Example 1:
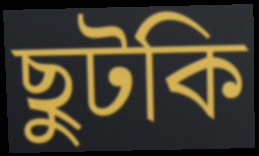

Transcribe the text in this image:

ছুটকি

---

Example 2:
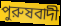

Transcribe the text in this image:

পুরুষবাদী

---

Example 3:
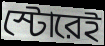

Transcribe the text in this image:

স্টোরেই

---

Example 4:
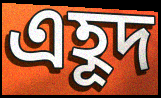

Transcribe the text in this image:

এহূদ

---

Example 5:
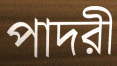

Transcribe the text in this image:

পাদরী